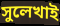
সুলেখাই